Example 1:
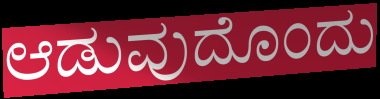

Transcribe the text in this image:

ಆಡುವುದೊಂದು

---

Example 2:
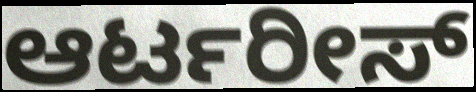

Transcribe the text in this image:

ಆರ್ಟರೀಸ್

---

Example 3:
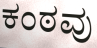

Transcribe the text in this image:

ಕಂಠವು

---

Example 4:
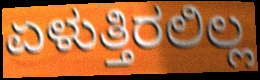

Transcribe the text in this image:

ಏಳುತ್ತಿರಲಿಲ್ಲ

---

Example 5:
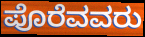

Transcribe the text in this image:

ಪೊರೆವವರು